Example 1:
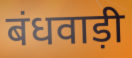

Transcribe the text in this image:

बंधवाड़ी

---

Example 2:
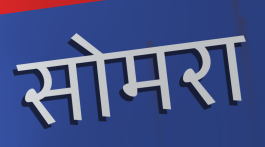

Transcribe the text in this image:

सोमरा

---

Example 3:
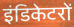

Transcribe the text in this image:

इंडिकेटरों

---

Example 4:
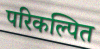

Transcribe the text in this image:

परिकल्पित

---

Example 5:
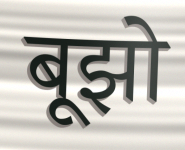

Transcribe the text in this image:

बूझो